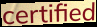
certified